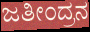
ಜತೀಂದ್ರನ